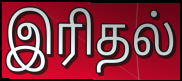
இரிதல்